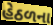
હેઠળના